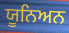
ਯੂਨਿਅਨ